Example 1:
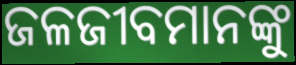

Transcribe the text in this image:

ଜଳଜୀବମାନଙ୍କୁ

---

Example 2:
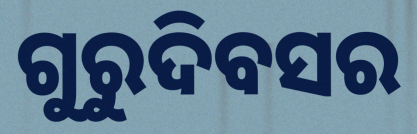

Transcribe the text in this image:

ଗୁରୁଦିବସର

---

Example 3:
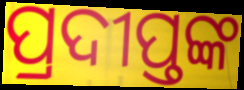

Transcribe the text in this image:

ପ୍ରଦୀପ୍ତଙ୍କ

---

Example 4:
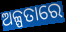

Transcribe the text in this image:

ଅଳ୍ପତାରେ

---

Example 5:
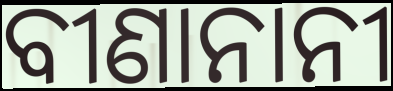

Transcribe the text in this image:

ବୀଣାନାନୀ